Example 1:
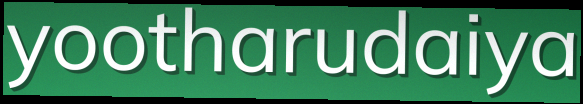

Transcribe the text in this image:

yootharudaiya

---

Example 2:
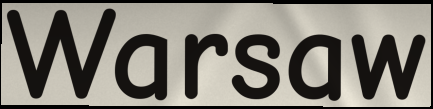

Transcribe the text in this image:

Warsaw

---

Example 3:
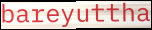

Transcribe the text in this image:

bareyuttha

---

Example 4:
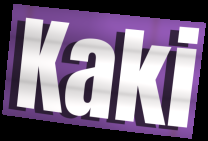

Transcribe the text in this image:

Kaki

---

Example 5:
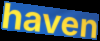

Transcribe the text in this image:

haven